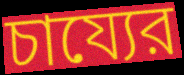
চায্যের